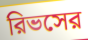
রিভসের